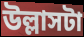
উল্লাসটা